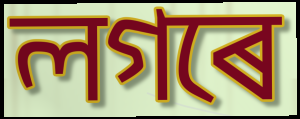
লগৰে